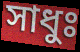
সাধুঃ